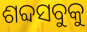
ଶବ୍ଦସବୁକୁ